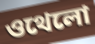
ওথেলো